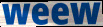
weew